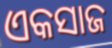
ଏକସାଜ